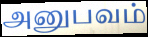
அனுபவம்